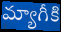
మ్యాగీకి